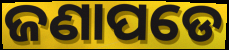
ଜଣାପଡେ